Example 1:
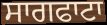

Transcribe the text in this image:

ਸਾਗਫਾਟਾ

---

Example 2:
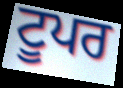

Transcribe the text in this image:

ਟੂਪਰ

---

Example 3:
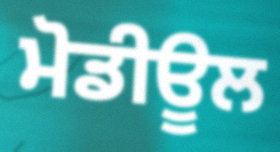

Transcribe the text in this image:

ਮੋਡੀਊਲ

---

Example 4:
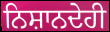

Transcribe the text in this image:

ਨਿਸ਼ਾਨਦੇਹੀ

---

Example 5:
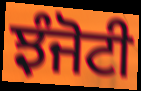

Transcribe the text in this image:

ਝੰਜੋਟੀ